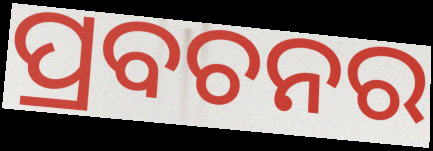
ପ୍ରବଚନର